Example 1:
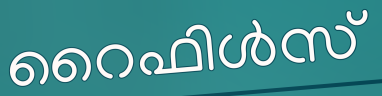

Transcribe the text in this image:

റൈഫിൾസ്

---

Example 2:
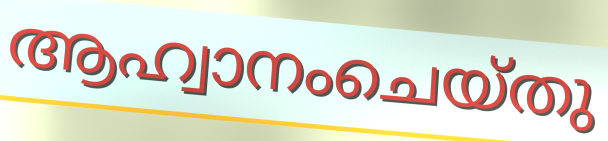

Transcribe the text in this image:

ആഹ്വാനംചെയ്തു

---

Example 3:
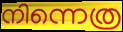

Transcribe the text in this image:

നിന്നെത്ര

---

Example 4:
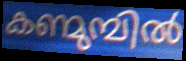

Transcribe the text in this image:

കണ്മുമ്പിൽ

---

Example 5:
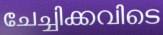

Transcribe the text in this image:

ചേച്ചിക്കവിടെ